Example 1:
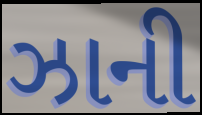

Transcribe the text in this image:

ઝાની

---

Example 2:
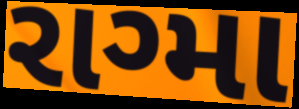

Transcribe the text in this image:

રાગ્મા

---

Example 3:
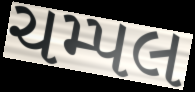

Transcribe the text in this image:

ચમ્પલ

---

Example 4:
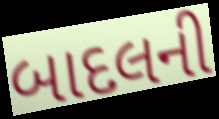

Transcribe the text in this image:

બાદલની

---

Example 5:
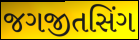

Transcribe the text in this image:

જગજીતસિંગ